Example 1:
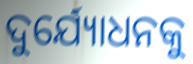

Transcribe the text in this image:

ଦୁର୍ଯ୍ୟୋଧନକୁ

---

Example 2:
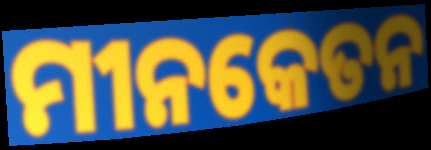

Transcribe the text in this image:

ମୀନକେତନ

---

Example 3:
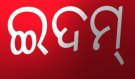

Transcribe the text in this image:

ଇଦମ୍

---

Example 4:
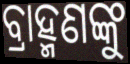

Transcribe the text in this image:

ବ୍ରାହ୍ମଣଙ୍କୁ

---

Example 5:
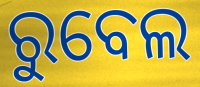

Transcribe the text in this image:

ରୁବେଲ